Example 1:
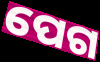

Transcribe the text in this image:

ପେଗ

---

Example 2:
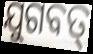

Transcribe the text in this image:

ଯୁଗବତ୍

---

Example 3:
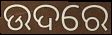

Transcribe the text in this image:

ଉଦରେ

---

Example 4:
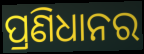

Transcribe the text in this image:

ପ୍ରଣିଧାନର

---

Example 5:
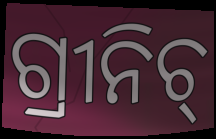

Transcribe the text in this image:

ଗ୍ରୀନିଚ୍